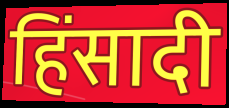
हिंसादी